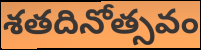
శతదినోత్సవం